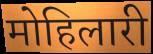
मोहिलारी